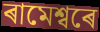
ৰামেশ্বৰে